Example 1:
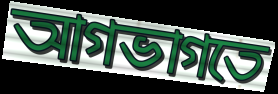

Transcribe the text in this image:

আগভাগতে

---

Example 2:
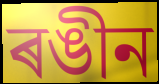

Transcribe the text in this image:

ৰঙীন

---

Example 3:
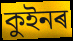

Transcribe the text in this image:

কুইনৰ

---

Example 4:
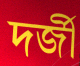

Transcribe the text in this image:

দৰ্জী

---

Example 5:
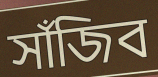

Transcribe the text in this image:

সাঁজিব